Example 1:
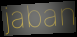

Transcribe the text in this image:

jaban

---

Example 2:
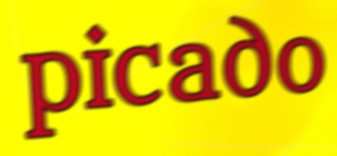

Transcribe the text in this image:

picado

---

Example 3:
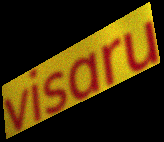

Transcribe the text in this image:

visaru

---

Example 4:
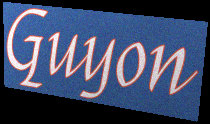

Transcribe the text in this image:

Guyon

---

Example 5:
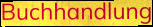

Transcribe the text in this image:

Buchhandlung